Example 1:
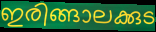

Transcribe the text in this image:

ഇരിങ്ങാലക്കുട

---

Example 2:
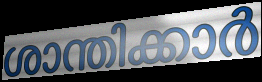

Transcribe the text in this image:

ശാന്തിക്കാർ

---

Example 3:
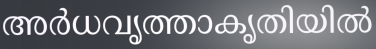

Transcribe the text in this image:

അർധവൃത്താകൃതിയിൽ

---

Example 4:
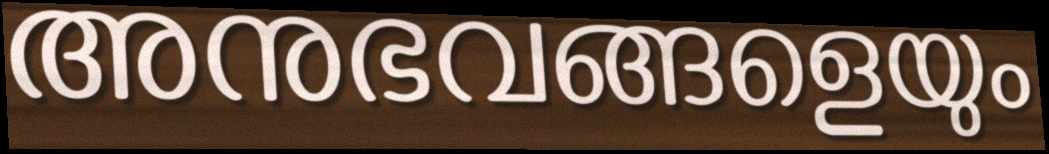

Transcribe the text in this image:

അനുഭവങ്ങളെയും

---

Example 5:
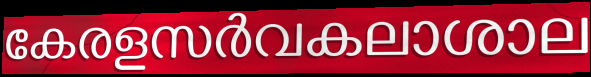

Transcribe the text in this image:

കേരളസർവകലാശാല